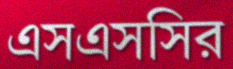
এসএসসির